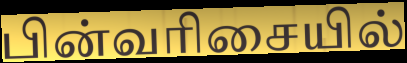
பின்வரிசையில்